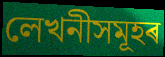
লেখনীসমূহৰ